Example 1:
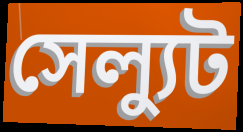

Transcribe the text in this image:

সেল্যুট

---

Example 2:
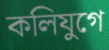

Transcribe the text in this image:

কলিযুগে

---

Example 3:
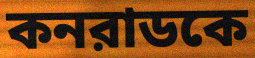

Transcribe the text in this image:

কনরাডকে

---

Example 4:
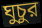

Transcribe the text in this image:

ঘুচুর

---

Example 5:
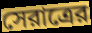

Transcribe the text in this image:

সেরাত্রের